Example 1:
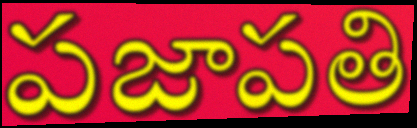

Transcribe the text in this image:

పజాపతి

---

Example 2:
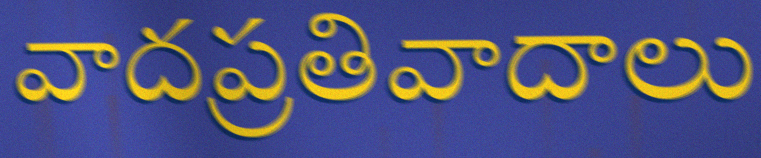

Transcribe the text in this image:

వాదప్రతివాదాలు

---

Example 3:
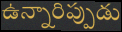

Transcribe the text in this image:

ఉన్నారిప్పుడు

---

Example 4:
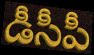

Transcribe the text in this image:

డీసీపీ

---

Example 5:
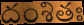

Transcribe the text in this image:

దంశితః